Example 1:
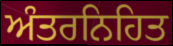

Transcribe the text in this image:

ਅੰਤਰਨਿਹਿਤ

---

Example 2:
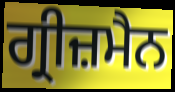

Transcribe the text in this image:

ਗ੍ਰੀਜ਼ਮੈਨ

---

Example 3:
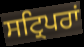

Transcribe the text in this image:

ਸਟ੍ਰਿਪਰਾਂ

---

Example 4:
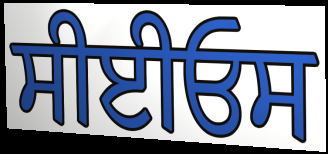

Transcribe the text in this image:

ਸੀਈਓਸ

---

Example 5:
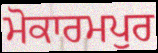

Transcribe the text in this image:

ਮੋਕਾਰਮਪੁਰ